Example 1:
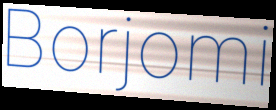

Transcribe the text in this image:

Borjomi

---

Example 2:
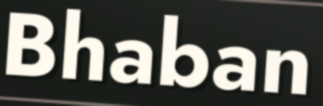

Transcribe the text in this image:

Bhaban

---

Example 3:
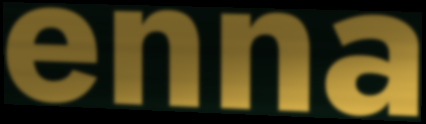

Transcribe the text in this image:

enna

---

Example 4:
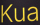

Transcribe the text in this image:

Kua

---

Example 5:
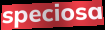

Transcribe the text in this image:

speciosa